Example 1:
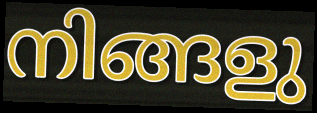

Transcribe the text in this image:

നിങ്ങളു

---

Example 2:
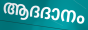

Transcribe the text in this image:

ആദദാനം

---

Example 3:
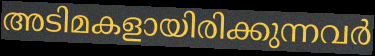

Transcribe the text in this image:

അടിമകളായിരിക്കുന്നവർ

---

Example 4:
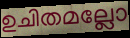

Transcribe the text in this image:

ഉചിതമല്ലോ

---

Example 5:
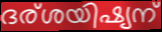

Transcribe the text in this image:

ദര്ശയിഷ്യന്